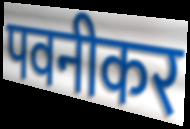
पवनीकर